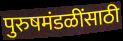
पुरुषमंडळींसाठी